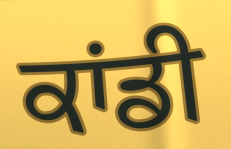
ਕਾਂਡੀ